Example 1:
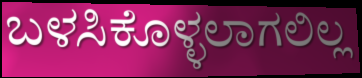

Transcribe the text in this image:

ಬಳಸಿಕೊಳ್ಳಲಾಗಲಿಲ್ಲ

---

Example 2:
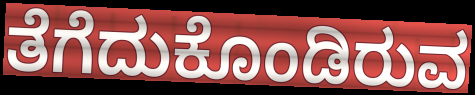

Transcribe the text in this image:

ತೆಗೆದುಕೊಂಡಿರುವ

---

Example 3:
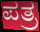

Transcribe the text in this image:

ಪತ್ರ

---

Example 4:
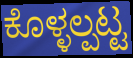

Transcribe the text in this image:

ಕೊಳ್ಳಲ್ಪಟ್ಟ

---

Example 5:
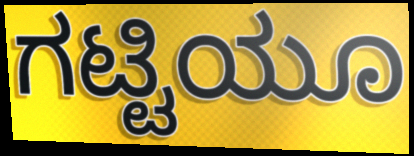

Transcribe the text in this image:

ಗಟ್ಟಿಯೂ